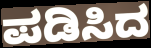
ಪಡಿಸಿದ